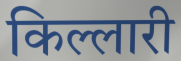
किल्लारी